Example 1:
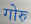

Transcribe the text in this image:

गोरु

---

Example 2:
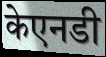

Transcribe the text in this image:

केएनडी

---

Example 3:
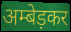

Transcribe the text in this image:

अम्बेड़कर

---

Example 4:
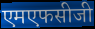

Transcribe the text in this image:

एमएफसीजी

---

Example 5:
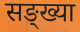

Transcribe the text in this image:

सङ्ख्या